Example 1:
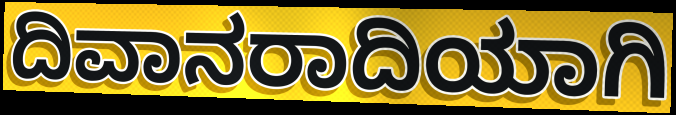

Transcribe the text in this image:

ದಿವಾನರಾದಿಯಾಗಿ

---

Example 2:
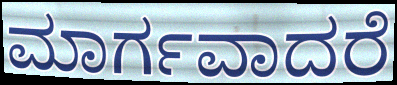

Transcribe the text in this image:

ಮಾರ್ಗವಾದರೆ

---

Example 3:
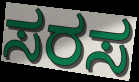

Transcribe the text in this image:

ಸರಸ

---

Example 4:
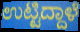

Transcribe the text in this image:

ಉಟ್ಟಿದ್ದಾಳೆ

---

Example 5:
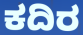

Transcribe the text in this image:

ಕದಿರ